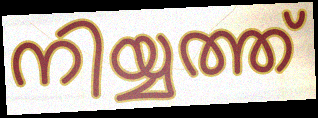
നിയ്യത്ത്